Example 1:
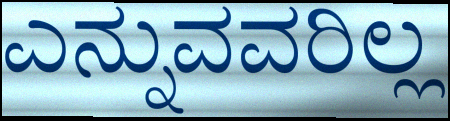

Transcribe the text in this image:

ಎನ್ನುವವರಿಲ್ಲ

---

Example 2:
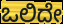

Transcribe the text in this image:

ಒಲಿದೇ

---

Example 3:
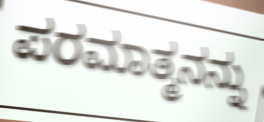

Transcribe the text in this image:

ಪರಮಾತ್ಮನನ್ನು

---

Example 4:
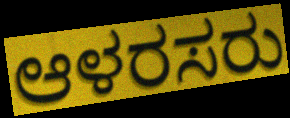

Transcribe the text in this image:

ಆಳರಸರು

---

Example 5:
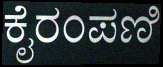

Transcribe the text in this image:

ಕೈರಂಪಣಿ